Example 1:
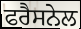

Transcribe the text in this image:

ਫਰੈਸਨੇਲ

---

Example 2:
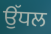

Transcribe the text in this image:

ਉੱਧਲ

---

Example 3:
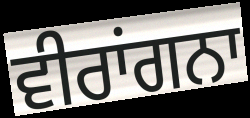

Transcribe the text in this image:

ਵੀਰਾਂਗਨਾ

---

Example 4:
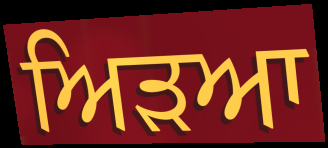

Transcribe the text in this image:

ਅਿੜਆ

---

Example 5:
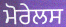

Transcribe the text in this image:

ਮੋਰੇਲਸ